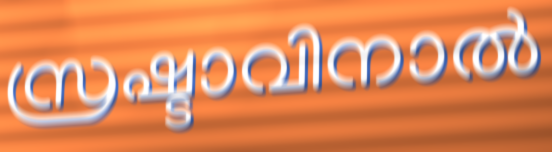
സ്രഷ്ടാവിനാൽ